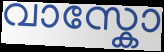
വാസ്കോ